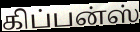
கிப்பன்ஸ்